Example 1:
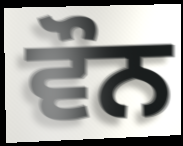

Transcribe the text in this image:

ਵੌਨ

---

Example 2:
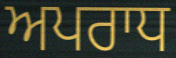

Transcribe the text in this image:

ਅਪਰਾਧ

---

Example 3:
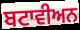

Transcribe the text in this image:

ਬਟਾਵੀਅਨ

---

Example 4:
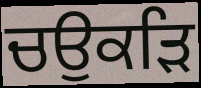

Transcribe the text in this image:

ਚਉਕੜਿ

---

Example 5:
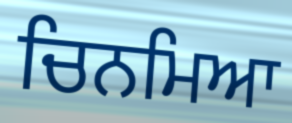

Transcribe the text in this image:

ਚਿਨਮਿਆ